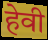
हेवी